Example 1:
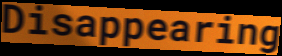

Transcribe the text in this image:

Disappearing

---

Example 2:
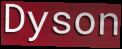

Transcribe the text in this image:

Dyson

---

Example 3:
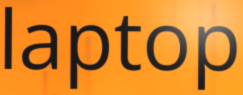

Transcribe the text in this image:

laptop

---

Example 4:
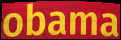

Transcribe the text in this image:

obama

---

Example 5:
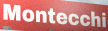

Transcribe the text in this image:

Montecchi